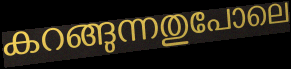
കറങ്ങുന്നതുപോലെ